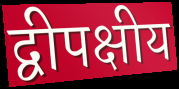
द्वीपक्षीय